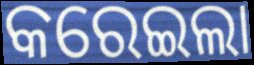
କରେଇଲା